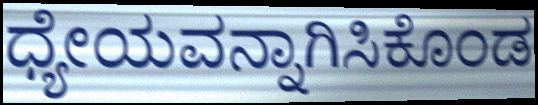
ಧ್ಯೇಯವನ್ನಾಗಿಸಿಕೊಂಡ